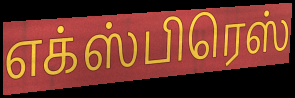
எக்ஸ்பிரெஸ்